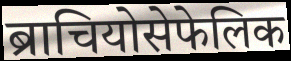
ब्राचियोसेफेलिक